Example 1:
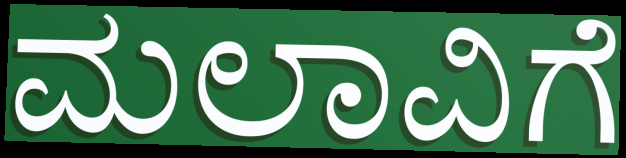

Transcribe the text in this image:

ಮಲಾವಿಗೆ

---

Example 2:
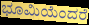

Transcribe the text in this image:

ಭೂಮಿಯೆಂದರೆ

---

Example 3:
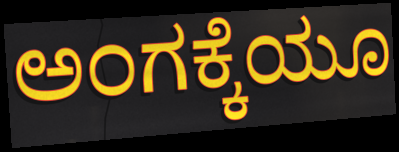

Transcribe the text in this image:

ಅಂಗಕ್ಕೆಯೂ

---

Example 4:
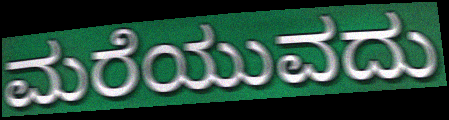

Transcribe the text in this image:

ಮರೆಯುವದು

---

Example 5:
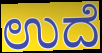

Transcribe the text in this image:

ಉದೆ